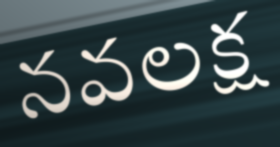
నవలక్ష